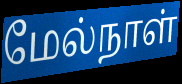
மேல்நாள்